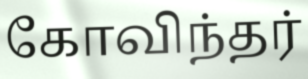
கோவிந்தர்